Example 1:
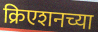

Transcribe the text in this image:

क्रिएशनच्या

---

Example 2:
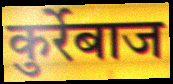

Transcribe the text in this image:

कुर्रेबाज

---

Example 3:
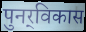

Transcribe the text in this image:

पुनर्विकास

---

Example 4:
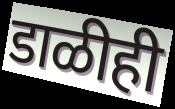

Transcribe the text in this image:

डाळीही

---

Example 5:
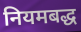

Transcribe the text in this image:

नियमबद्ध